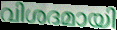
വിശദമായി